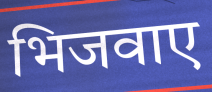
भिजवाए